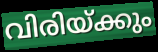
വിരിയ്ക്കും